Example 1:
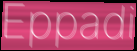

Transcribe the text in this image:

Eppadi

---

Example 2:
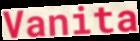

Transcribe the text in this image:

Vanita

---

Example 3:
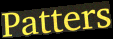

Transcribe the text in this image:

Patters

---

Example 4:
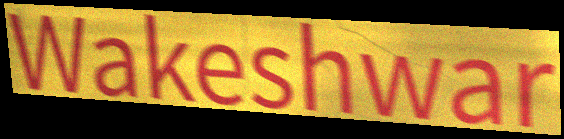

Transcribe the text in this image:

Wakeshwar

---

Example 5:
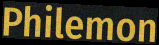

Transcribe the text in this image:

Philemon